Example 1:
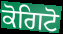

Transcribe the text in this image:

ਕੋਗਿਟੋ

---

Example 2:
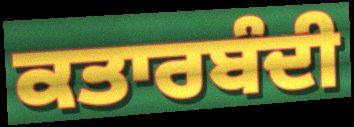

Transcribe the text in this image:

ਕਤਾਰਬੰਦੀ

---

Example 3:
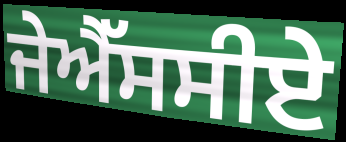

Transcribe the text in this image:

ਜੇਐੱਸਸੀਏ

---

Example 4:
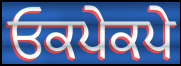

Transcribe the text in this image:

ਓਕਪੇਕਪੇ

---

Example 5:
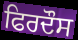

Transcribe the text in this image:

ਫਿਰਦੌਸ